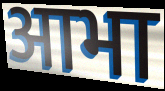
आभा